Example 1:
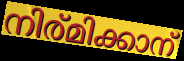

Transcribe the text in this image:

നിര്മിക്കാന്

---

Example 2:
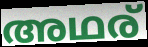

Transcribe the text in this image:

അഥര്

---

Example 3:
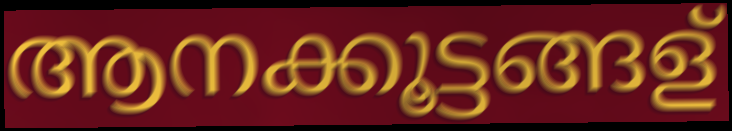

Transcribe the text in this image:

ആനക്കൂട്ടങ്ങള്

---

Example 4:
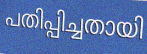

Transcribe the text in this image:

പതിപ്പിച്ചതായി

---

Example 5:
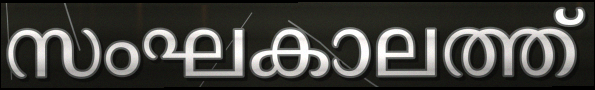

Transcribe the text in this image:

സംഘകാലത്ത്